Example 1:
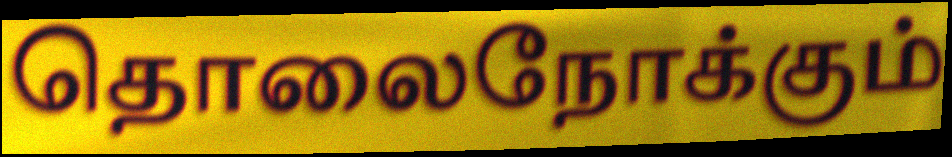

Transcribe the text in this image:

தொலைநோக்கும்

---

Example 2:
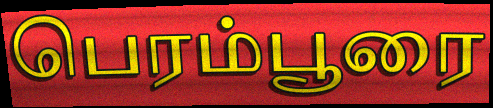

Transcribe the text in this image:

பெரம்பூரை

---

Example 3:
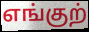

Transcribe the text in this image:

எங்குற்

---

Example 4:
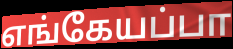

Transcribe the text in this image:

எங்கேயப்பா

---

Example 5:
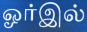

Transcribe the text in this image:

ஓர்இல்